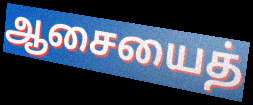
ஆசையைத்